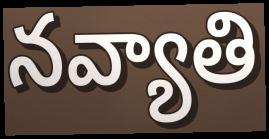
నవ్యాతి